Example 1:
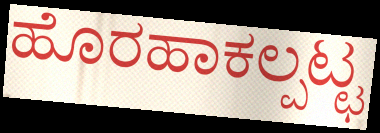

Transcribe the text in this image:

ಹೊರಹಾಕಲ್ಪಟ್ಟ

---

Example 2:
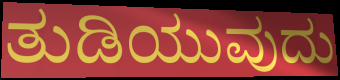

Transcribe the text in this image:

ತುಡಿಯುವುದು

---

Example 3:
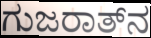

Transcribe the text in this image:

ಗುಜರಾತ್‌ನ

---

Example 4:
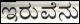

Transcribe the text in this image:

ಇರುವೆನು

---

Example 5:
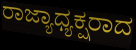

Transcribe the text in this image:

ರಾಜ್ಯಾಧ್ಯಕ್ಷರಾದ